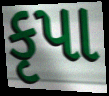
કૃપા